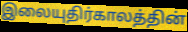
இலையுதிர்காலத்தின்